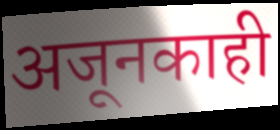
अजूनकाही